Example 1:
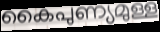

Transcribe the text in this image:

കൈപുണ്യമുള്ള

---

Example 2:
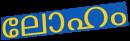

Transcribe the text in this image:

ലോഹം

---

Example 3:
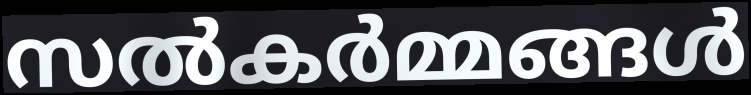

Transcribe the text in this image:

സൽകർമ്മങ്ങൾ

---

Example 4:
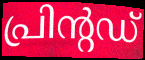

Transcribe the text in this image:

പ്രിന്റഡ്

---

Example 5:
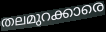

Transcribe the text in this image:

തലമുറക്കാരെ